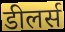
डीलर्स